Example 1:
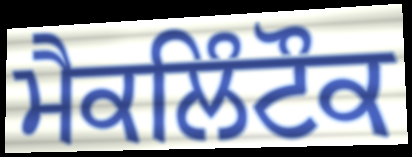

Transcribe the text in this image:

ਮੈਕਲਿੰਟੌਕ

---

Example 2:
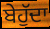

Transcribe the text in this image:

ਬੇਹੁੱਦਾ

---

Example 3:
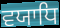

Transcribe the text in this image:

ਵਯਾਧਿ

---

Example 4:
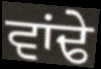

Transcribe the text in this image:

ਵਾਂਢੇ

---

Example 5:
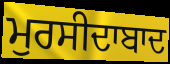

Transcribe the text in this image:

ਮੁਰਸੀਦਾਬਾਦ